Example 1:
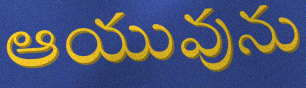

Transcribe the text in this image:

ఆయువును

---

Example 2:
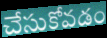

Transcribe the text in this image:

చేసుకోవడం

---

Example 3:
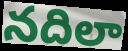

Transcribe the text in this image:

నదిలా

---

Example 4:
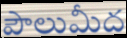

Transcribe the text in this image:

పౌలుమీద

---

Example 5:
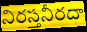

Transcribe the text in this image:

నిరస్తనీరదా